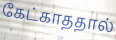
கேட்காததால்